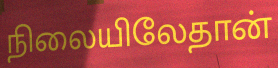
நிலையிலேதான்